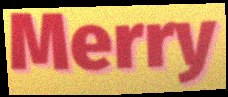
Merry